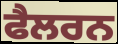
ਫੈਲਰਨ